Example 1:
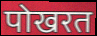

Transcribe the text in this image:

पोखरत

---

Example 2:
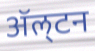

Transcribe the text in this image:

ॲल्टन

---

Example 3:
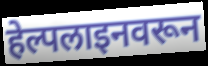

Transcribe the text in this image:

हेल्पलाइनवरून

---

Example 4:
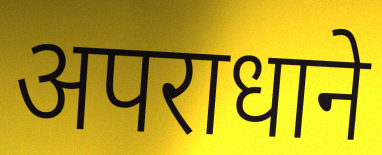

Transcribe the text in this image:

अपराधाने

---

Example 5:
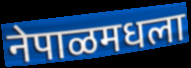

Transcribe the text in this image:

नेपाळमधला